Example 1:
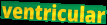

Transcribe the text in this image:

ventricular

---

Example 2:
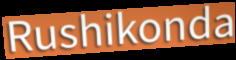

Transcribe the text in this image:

Rushikonda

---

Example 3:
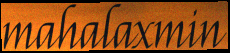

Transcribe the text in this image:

mahalaxmin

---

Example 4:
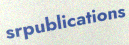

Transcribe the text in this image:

srpublications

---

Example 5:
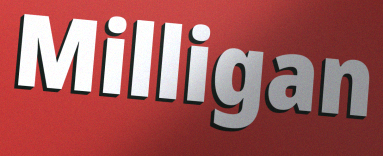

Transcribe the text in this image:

Milligan